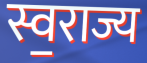
स्व॒राज्य